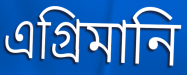
এগ্রিমানি